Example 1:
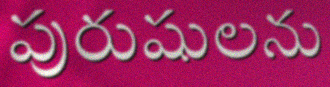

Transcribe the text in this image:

పురుషులను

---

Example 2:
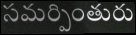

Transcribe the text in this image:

సమర్పింతురు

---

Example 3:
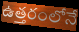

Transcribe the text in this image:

ఉత్తరంలోనే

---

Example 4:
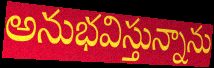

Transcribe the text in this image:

అనుభవిస్తున్నాను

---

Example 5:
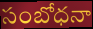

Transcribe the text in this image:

సంబోధనా